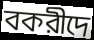
বকরীদে